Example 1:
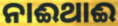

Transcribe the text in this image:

ନାଈଥାଈ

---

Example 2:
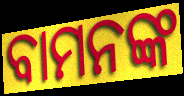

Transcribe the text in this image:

ବାମନଙ୍କ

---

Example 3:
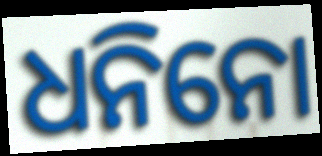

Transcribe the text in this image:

ଧନିନୋ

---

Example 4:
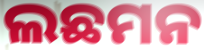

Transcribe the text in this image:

ଲଛମନ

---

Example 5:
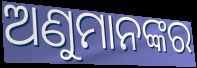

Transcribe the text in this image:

ଅଣୁମାନଙ୍କର